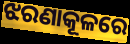
ଝରଣାକୂଳରେ